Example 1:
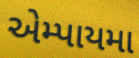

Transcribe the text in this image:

એમ્પાયમા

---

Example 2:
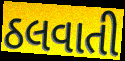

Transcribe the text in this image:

ઠલવાતી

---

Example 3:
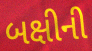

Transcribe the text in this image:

બક્ષીની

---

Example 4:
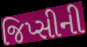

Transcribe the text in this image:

જિપ્સીની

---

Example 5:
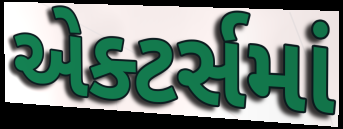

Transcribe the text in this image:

એક્ટર્સમાં